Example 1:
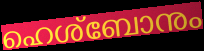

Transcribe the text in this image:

ഹെശ്ബോനും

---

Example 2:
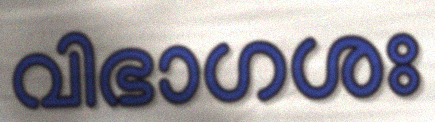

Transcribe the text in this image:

വിഭാഗശഃ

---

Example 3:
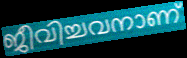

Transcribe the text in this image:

ജീവിച്ചവനാണ്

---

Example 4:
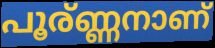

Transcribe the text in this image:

പൂര്ണ്ണനാണ്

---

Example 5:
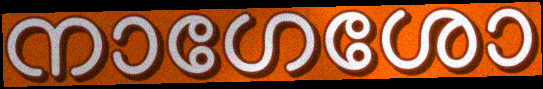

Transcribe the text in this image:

നാഗേശോ